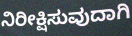
ನಿರೀಕ್ಷಿಸುವುದಾಗಿ